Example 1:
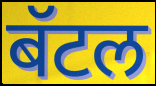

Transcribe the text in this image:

बॅटल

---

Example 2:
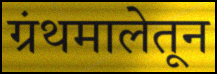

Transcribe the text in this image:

ग्रंथमालेतून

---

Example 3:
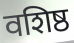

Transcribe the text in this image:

वशिष्ठ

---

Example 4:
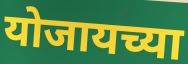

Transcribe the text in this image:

योजायच्या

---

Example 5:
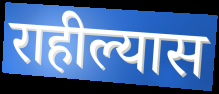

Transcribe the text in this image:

राहील्यास